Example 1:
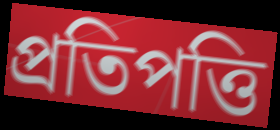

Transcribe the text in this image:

প্রতিপত্তি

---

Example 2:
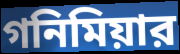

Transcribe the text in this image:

গনিমিয়ার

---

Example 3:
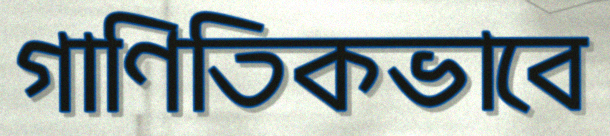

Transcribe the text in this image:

গাণিতিকভাবে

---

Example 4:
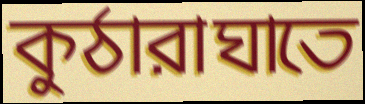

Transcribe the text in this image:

কুঠারাঘাতে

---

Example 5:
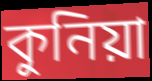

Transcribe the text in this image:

কুনিয়া